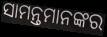
ସାମନ୍ତମାନଙ୍କର